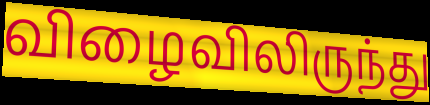
விழைவிலிருந்து